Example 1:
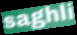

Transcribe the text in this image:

saghli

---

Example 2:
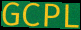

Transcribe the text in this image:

GCPL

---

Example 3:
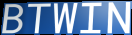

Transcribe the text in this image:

BTWIN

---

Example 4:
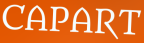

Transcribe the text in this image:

CAPART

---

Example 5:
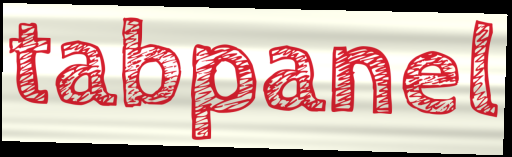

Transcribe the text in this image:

tabpanel